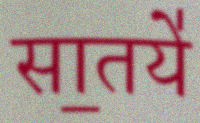
सा॒तये॑